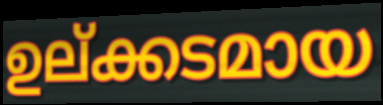
ഉല്ക്കടമായ